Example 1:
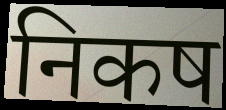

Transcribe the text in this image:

निकष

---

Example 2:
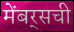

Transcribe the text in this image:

मेंबर्सची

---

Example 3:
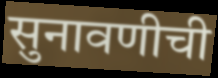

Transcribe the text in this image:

सुनावणीची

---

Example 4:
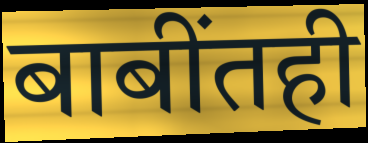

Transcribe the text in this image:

बाबींतही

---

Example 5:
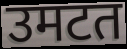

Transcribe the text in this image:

उमटत